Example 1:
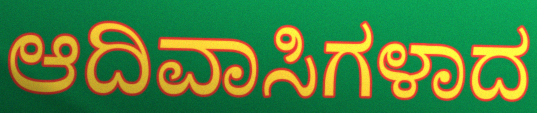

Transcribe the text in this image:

ಆದಿವಾಸಿಗಳಾದ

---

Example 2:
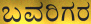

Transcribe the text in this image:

ಬವರಿಗರ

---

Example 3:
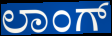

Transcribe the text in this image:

ಲಾಂಗ್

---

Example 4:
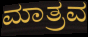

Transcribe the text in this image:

ಮಾತ್ರವ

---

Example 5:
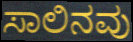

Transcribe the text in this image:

ಸಾಲಿನವು